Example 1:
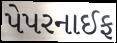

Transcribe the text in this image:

પેપરનાઈફ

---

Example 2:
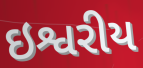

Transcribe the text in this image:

ઇશ્વરીય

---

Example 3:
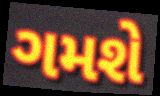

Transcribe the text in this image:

ગમશે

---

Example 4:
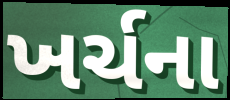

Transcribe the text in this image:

ખર્ચના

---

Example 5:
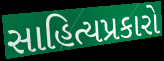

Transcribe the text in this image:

સાહિત્યપ્રકારો